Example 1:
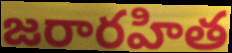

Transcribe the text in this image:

జరారహిత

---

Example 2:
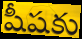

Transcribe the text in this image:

షీషకు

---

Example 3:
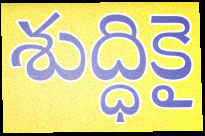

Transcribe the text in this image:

శుద్ధికై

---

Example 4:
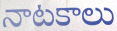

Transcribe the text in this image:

నాటకాలు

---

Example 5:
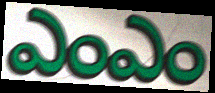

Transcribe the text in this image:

ఎంఎం